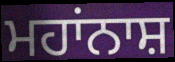
ਮਹਾਂਨਾਸ਼